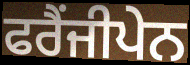
ਫਰੈਂਜੀਪੇਨ